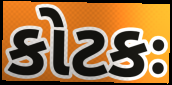
કોટકઃ